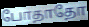
போதாதோ